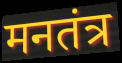
मनतंत्र